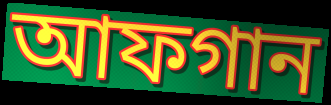
আফগান